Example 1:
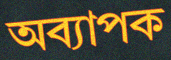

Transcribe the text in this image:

অব্যাপক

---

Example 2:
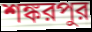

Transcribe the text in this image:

শঙ্করপুর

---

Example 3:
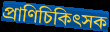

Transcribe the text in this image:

প্রাণিচিকিৎসক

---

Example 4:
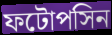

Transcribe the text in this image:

ফটোপসিন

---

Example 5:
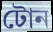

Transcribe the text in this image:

টোন